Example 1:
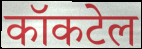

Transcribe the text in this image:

कॉकटेल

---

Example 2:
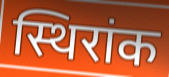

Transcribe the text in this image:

स्थिरांक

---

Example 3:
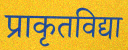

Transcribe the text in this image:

प्राकृतविद्या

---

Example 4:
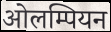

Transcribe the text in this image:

ओलम्पियन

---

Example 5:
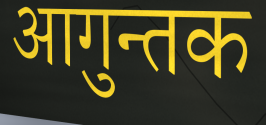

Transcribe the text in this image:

आगुन्तक